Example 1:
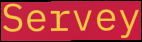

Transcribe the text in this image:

Servey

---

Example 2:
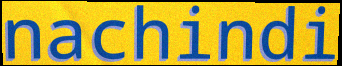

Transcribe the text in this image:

nachindi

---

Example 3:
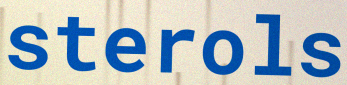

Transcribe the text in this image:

sterols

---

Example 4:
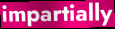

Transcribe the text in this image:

impartially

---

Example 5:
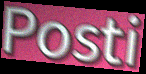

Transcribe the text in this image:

Posti